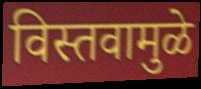
विस्तवामुळे